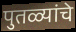
पुतळ्यांचे